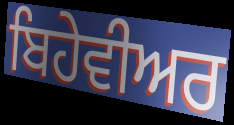
ਬਿਹੇਵੀਅਰ